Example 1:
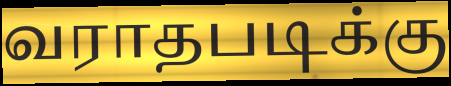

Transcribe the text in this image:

வராதபடிக்கு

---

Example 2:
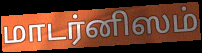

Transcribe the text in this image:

மாடர்னிஸம்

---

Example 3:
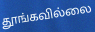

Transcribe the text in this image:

தூங்கவில்லை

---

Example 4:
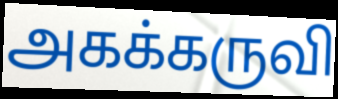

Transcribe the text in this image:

அகக்கருவி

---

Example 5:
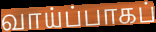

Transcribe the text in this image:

வாய்ப்பாகப்